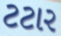
ટટાર